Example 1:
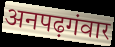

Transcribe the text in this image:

अनपढ़गंवार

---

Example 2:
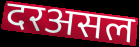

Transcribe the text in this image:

दरअसल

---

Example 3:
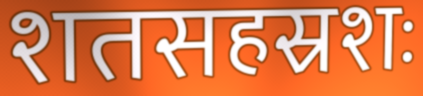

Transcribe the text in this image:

शतसहस्रशः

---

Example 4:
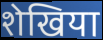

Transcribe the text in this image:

शेखिया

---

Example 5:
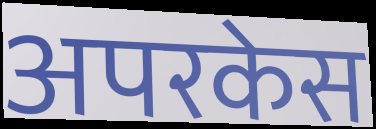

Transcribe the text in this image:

अपरकेस